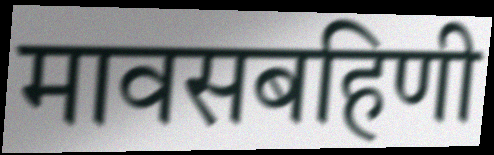
मावसबहिणी